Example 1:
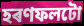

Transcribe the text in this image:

হৰণফলটো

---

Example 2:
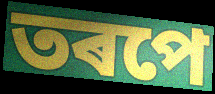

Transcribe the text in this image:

তৰপে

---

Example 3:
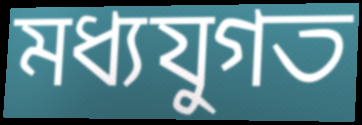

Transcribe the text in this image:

মধ্যযুগত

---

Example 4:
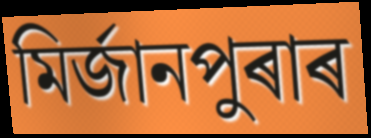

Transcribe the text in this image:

মিৰ্জানপুৰাৰ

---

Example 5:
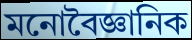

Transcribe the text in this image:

মনোবৈজ্ঞানিক